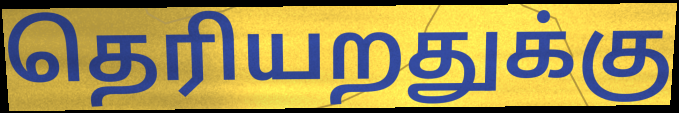
தெரியறதுக்கு